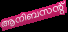
ആനിബസന്റ്